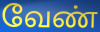
வேண்